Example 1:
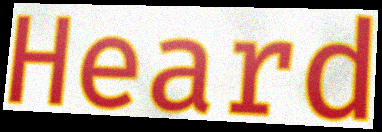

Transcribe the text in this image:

Heard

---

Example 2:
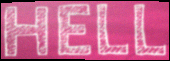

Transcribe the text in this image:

HELL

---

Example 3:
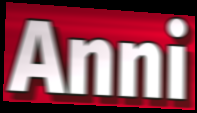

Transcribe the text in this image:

Anni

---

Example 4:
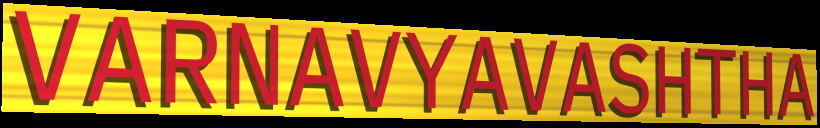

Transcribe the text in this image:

VARNAVYAVASHTHA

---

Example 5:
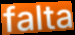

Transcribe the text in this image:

falta